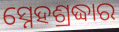
ସ୍ନେହଶ୍ରଦ୍ଧାର